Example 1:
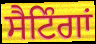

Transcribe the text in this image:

ਸੈਟਿੰਗਾਂ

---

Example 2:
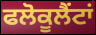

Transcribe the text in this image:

ਫਲੋਕੂਲੈਂਟਾਂ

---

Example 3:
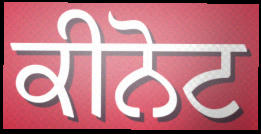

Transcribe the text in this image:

ਕੀਨੋਟ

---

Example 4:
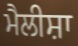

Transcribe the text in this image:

ਮੈਲੀਸ਼ਾ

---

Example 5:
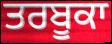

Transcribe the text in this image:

ਤਰਬੂਕਾ